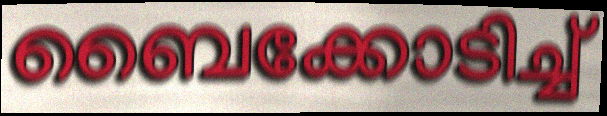
ബൈക്കോടിച്ച്